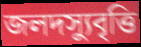
জলদস্যুবৃত্তি